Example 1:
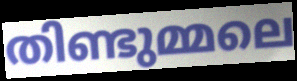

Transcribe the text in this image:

തിണ്ടുമ്മലെ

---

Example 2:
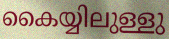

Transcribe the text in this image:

കൈയ്യിലുള്ളു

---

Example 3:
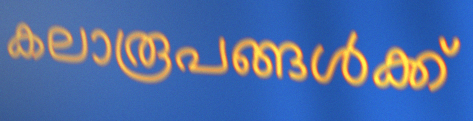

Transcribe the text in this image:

കലാരൂപങ്ങൾക്ക്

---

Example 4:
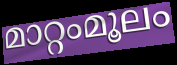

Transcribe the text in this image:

മാറ്റംമൂലം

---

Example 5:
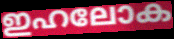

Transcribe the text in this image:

ഇഹലോക